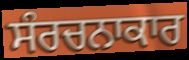
ਸੰਰਚਨਾਕਾਰ